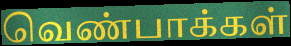
வெண்பாக்கள்